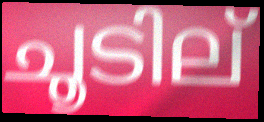
ചൂടില്